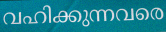
വഹിക്കുന്നവരെ